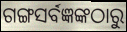
ଗଙ୍ଗସର୍ବଜ୍ଞଙ୍କଠାରୁ